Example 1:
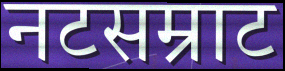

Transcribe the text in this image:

नटसम्राट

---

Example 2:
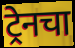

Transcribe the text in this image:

ट्रेनचा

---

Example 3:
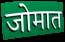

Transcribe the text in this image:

जोमात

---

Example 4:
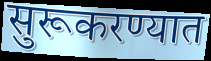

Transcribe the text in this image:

सुरूकरण्यात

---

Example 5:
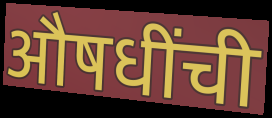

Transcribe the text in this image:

औषधींची